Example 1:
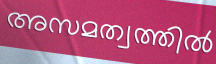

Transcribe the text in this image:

അസമത്വത്തിൽ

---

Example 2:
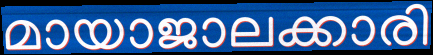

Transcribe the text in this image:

മായാജാലക്കാരി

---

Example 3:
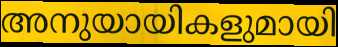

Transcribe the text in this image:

അനുയായികളുമായി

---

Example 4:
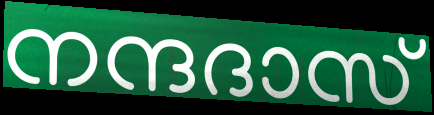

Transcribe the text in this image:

നന്ദദാസ്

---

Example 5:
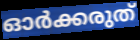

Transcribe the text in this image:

ഓർക്കരുത്